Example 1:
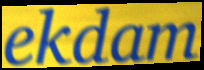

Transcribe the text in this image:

ekdam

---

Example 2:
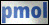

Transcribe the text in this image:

pmol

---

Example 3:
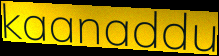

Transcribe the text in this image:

kaanaddu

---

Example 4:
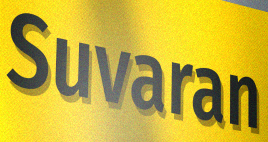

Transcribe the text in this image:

Suvaran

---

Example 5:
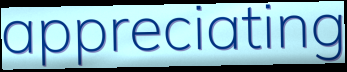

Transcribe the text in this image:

appreciating